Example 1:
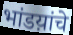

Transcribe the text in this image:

भांडय़ांचे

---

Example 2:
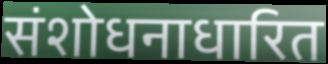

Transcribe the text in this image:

संशोधनाधारित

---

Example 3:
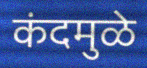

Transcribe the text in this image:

कंदमुळे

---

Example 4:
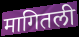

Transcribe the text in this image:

मागितली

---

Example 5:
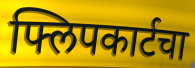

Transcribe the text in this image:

फ्लिपकार्टचा